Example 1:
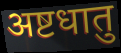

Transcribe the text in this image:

अष्टधातु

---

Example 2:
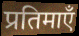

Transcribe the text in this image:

प्रतिमाएँ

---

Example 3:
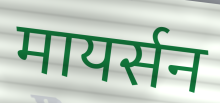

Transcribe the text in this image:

मायर्सन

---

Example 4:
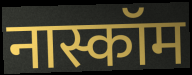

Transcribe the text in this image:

नास्कॉम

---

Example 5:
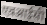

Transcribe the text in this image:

एचआईसी